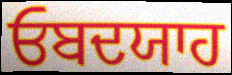
ਓਬਦਯਾਹ